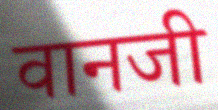
वानजी